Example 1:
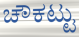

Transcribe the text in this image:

ಚೌಕಟ್ಟು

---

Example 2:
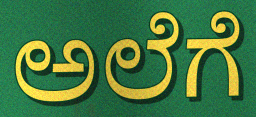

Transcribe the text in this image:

ಅಲೆಗೆ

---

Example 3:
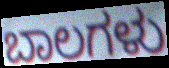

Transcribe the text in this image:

ಬಾಲಗಳು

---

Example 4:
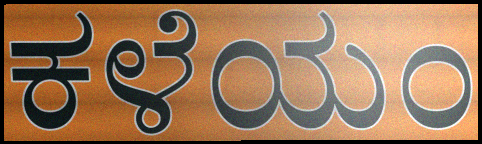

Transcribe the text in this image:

ಕಳೆಯಂ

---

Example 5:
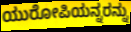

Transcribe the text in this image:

ಯುರೋಪಿಯನ್ನರನ್ನು